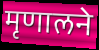
मृणालने